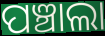
ପଞ୍ଚାଲା